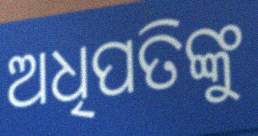
ଅଧିପତିଙ୍କୁ